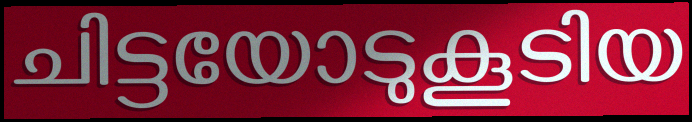
ചിട്ടയോടുകൂടിയ